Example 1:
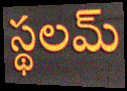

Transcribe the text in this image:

స్థలమ్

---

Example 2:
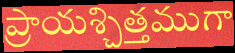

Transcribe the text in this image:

ప్రాయశ్చిత్తముగా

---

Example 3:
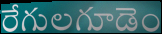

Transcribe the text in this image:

రేగులగూడెం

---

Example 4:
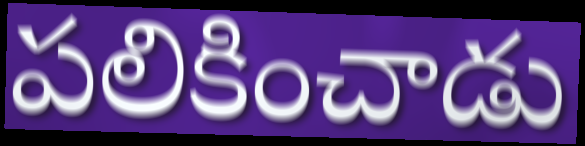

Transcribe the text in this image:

పలికించాడు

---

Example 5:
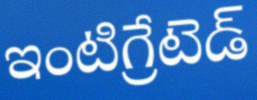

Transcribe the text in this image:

ఇంటిగ్రేటెడ్